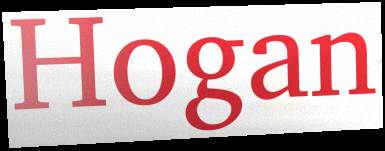
Hogan